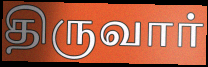
திருவார்